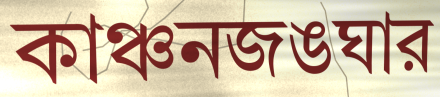
কাঞ্চনজঙঘার